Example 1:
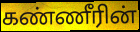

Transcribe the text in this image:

கண்ணீரின்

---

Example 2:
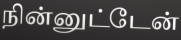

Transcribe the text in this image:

நின்னுட்டேன்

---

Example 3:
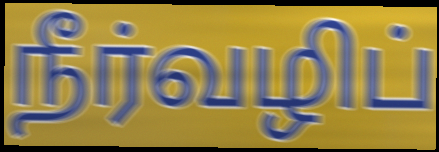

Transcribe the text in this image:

நீர்வழிப்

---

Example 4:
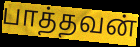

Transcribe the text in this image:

பாத்தவன்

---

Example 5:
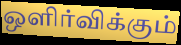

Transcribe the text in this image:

ஒளிர்விக்கும்